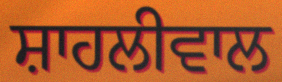
ਸ਼ਾਹਲੀਵਾਲ